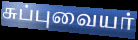
சுப்புவையர்